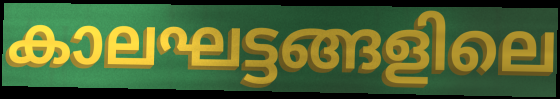
കാലഘട്ടങ്ങളിലെ